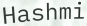
Hashmi